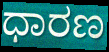
ಧಾರಣ